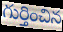
గుర్తించిన